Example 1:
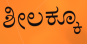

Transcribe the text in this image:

ಶೀಲಕ್ಕೂ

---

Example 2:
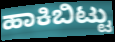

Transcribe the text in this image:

ಹಾಕಿಬಿಟ್ಟು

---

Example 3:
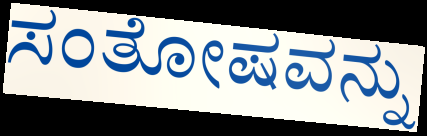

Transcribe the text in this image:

ಸಂತೋಷವನ್ನು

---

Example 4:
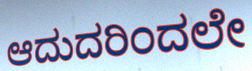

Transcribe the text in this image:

ಆದುದರಿಂದಲೇ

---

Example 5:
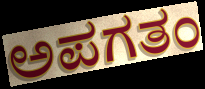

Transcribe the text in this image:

ಅಪಗತಂ